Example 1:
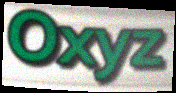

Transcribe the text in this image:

Oxyz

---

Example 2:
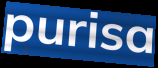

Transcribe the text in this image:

purisa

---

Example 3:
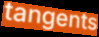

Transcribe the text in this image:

tangents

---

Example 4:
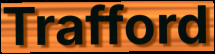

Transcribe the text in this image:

Trafford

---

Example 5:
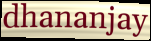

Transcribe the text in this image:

dhananjay